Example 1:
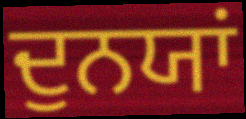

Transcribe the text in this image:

ਦੁਨਯਾਂ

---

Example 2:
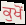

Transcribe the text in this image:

ਕੁਖੋਂ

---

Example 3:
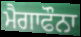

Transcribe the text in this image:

ਮੈਗਾਫੌਨਾ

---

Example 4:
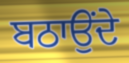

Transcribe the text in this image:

ਬਠਾਉਂਦੇ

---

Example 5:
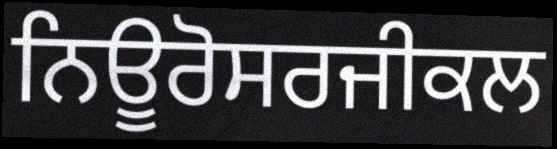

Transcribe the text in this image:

ਨਿਊਰੋਸਰਜੀਕਲ